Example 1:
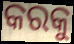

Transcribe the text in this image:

କରକୁ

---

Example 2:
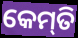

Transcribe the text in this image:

କେମ୍‍ତି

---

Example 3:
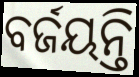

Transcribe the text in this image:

ବର୍ଜୟନ୍ତି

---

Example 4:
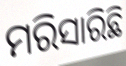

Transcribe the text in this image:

ମରିସାରିଛି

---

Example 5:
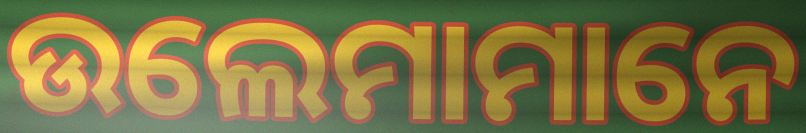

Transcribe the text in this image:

ଉଲେମାମାନେ